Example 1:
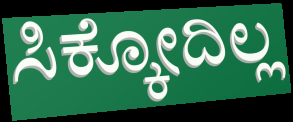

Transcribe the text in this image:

ಸಿಕ್ಕೋದಿಲ್ಲ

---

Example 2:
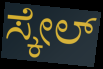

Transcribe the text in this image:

ಸ್ಕೇಲ್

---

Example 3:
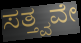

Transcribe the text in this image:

ಸತ್ತ್ವವೇ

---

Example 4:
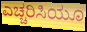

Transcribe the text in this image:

ಎಚ್ಚರಿಸಿಯೂ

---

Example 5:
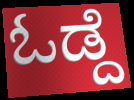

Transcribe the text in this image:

ಓಡ್ದೆ